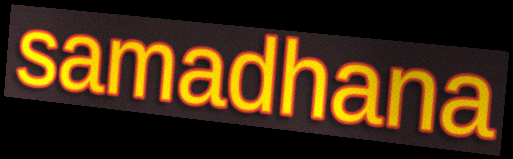
samadhana